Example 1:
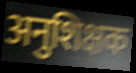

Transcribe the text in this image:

अनुशिक्षक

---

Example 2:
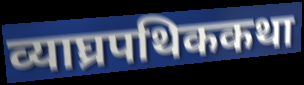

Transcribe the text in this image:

व्याघ्रपथिककथा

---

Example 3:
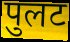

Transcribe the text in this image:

पुलट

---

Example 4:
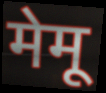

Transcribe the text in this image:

मेमू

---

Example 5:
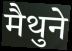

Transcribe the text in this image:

मैथुने